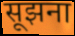
सूझना